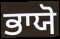
ਭਾਯੋ